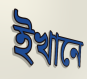
ইখানে